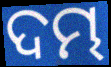
ଦମ୍ଭ